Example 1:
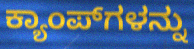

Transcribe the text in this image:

ಕ್ಯಾಂಪ್‍ಗಳನ್ನು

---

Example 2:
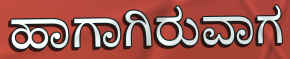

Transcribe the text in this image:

ಹಾಗಾಗಿರುವಾಗ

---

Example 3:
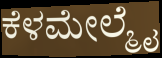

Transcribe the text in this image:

ಕೆಳಮೇಲ್ಮೈ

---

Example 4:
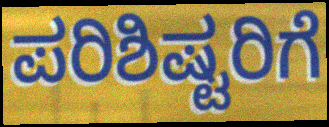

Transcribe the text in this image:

ಪರಿಶಿಷ್ಟರಿಗೆ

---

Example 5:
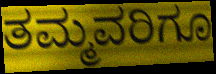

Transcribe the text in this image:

ತಮ್ಮವರಿಗೂ